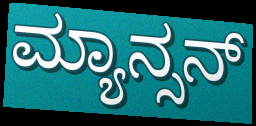
ಮ್ಯಾನ್ಸನ್